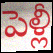
పెళ్లీ